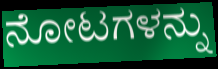
ನೋಟಗಳನ್ನು